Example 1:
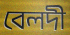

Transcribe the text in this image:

বেলদী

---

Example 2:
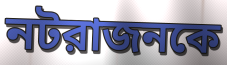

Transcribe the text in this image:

নটরাজনকে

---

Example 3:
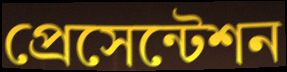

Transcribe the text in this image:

প্রেসেন্টেশন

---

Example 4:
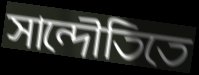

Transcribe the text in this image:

সান্দৌতিতে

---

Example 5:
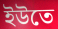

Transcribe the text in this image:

ইউতে